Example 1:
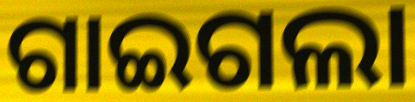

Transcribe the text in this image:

ଗାଇଗଲା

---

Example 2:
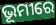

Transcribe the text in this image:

ଭୂମୀରେ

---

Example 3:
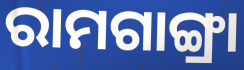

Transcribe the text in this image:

ରାମଗାଙ୍ଗ୍ରା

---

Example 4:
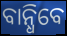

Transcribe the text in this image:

ବାନ୍ଧିବେ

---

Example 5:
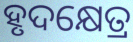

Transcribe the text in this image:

ହୃଦକ୍ଷେତ୍ର